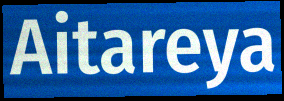
Aitareya